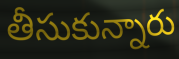
తీసుకున్నారు